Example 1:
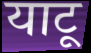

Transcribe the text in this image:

याटू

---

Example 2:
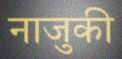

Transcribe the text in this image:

नाजुकी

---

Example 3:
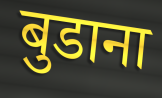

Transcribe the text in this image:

बुडाना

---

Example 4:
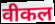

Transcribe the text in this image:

वीकल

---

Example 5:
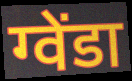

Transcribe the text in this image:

ग्वेंडा